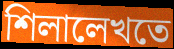
শিলালেখতে